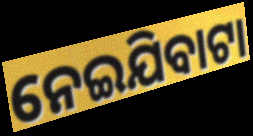
ନେଇଯିବାଟା